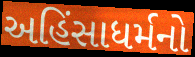
અહિંસાધર્મનો